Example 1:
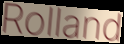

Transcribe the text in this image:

Rolland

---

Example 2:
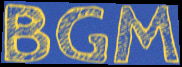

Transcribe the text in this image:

BGM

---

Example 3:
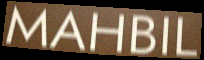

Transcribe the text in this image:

MAHBIL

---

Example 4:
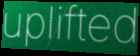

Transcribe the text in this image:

uplifted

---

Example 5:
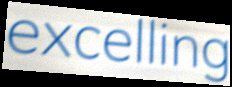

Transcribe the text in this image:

excelling